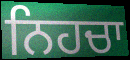
ਨਿਹਚਾ